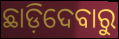
ଛାଡ଼ିଦେବାରୁ